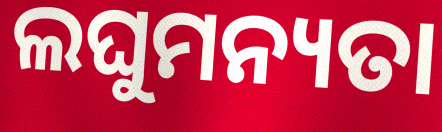
ଲଘୁମନ୍ୟତା